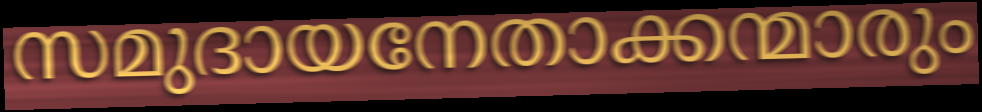
സമുദായനേതാക്കന്മാരും